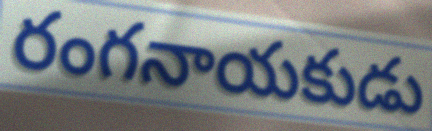
రంగనాయకుడు